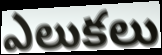
ఎలుకలు